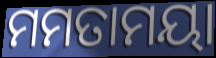
ମମତାମୟା